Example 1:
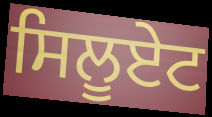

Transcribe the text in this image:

ਸਿਲੂਏਟ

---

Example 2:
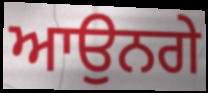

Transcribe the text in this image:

ਆਉਨਗੇ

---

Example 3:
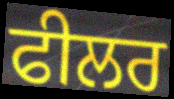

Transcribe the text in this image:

ਫੀਲਰ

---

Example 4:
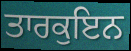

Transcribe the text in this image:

ਤਾਰਕੁਇਨ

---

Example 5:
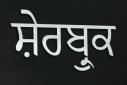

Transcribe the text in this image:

ਸ਼ੇਰਬ੍ਰੁਕ